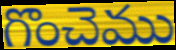
గొంచెము